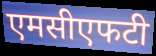
एमसीएफटी